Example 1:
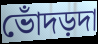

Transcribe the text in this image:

ভোঁদড়দা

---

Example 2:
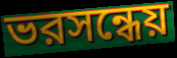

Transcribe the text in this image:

ভরসন্ধেয়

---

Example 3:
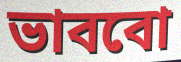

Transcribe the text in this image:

ভাববো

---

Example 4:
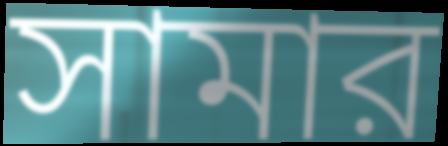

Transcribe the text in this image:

সামার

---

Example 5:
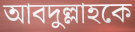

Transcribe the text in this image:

আবদুল্লাহকে